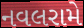
નવલરામે